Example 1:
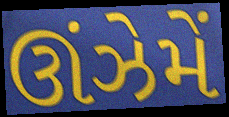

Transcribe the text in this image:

ઊંઝેમેં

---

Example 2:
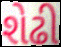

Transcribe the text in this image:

શેઢી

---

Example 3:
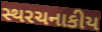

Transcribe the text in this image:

સ્થરચનાકીય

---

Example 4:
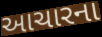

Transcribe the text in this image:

આચારના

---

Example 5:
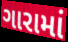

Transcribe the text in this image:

ગારામાં